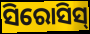
ସିରୋସିସ୍